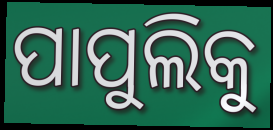
ପାପୁଲିକୁ